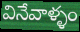
వినేవాళ్ళం